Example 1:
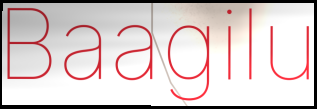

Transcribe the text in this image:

Baagilu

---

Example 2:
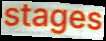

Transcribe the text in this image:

stages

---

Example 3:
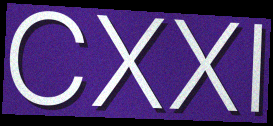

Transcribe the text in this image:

CXXI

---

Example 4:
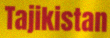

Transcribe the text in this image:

Tajikistan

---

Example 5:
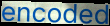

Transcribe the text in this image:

encoded